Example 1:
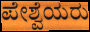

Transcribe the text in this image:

ಪೇಶ್ವೆಯರು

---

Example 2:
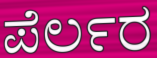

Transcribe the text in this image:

ಪೆರ್ಲರ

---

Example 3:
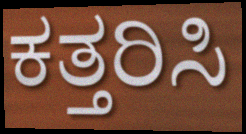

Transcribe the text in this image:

ಕತ್ತರಿಸಿ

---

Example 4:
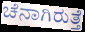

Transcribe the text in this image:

ಚೆನಾಗಿರುತ್ತೆ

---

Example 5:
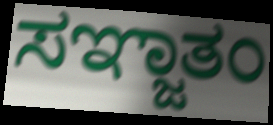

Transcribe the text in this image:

ಸಞ್ಜಾತಂ